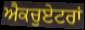
ਐਕਚੁਏਟਰਾਂ